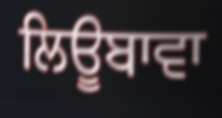
ਲਿਊਬਾਵਾ